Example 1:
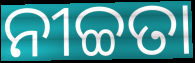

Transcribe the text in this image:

ନୀଚ୍ଚତା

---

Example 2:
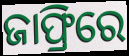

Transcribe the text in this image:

ଜାଫ୍ରିରେ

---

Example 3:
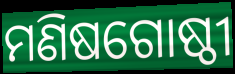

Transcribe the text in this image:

ମଣିଷଗୋଷ୍ଠୀ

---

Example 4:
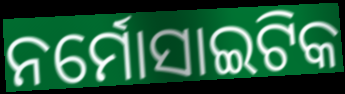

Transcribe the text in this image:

ନର୍ମୋସାଇଟିକ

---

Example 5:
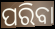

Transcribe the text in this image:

ପରିବା